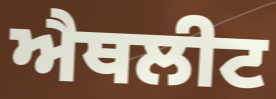
ਐਥਲੀਟ